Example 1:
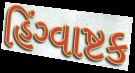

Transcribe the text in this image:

હિંગ્વાષ્ટક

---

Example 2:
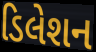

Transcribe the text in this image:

ડિલેશન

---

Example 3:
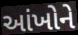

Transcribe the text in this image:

આંખોને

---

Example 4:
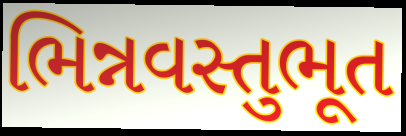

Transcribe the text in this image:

ભિન્નવસ્તુભૂત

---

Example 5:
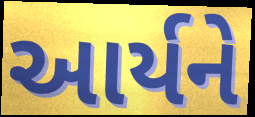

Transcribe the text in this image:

આર્યને